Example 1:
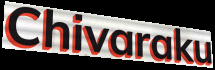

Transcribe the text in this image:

Chivaraku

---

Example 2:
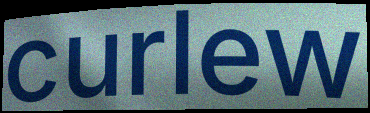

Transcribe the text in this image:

curlew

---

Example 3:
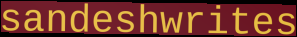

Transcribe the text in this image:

sandeshwrites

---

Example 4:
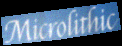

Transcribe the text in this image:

Microlithic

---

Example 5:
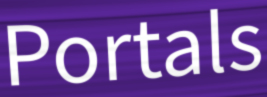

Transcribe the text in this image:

Portals